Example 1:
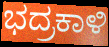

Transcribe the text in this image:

ಭದ್ರಕಾಳಿ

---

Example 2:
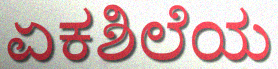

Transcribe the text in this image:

ಏಕಶಿಲೆಯ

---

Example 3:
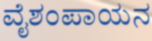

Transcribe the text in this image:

ವೈಶಂಪಾಯನ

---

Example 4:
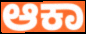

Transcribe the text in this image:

ಆಕಾ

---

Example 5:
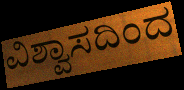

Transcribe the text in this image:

ವಿಶ್ವಾಸದಿಂದ